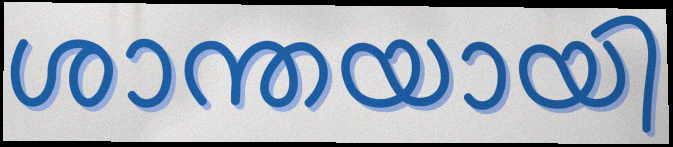
ശാന്തയായി